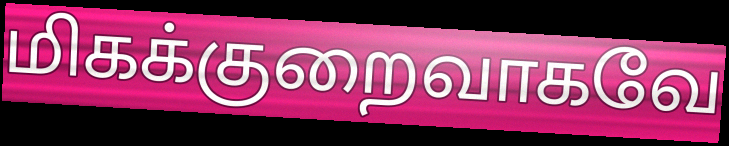
மிகக்குறைவாகவே